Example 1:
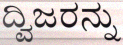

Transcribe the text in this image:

ದ್ವಿಜರನ್ನು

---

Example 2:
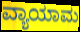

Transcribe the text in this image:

ವ್ಯಾಯಾಮ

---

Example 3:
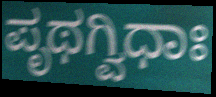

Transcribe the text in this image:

ಪೃಥಗ್ವಿಧಾಃ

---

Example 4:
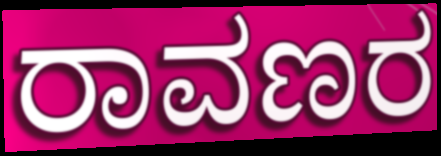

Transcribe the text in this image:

ರಾವಣರ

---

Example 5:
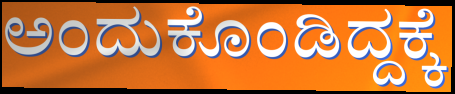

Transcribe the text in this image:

ಅಂದುಕೊಂಡಿದ್ದಕ್ಕೆ